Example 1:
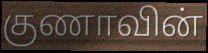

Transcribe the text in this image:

குணாவின்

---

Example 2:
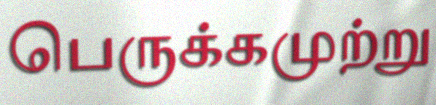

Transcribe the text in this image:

பெருக்கமுற்று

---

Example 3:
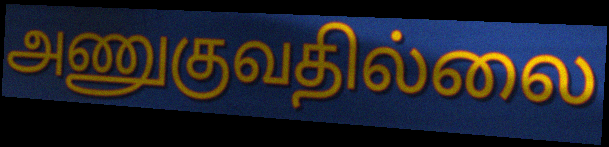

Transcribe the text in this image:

அணுகுவதில்லை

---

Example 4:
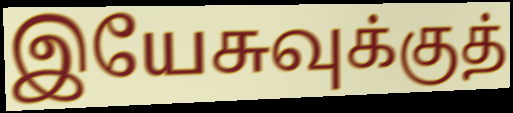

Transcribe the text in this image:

இயேசுவுக்குத்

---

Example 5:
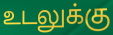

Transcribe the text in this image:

உடலுக்கு